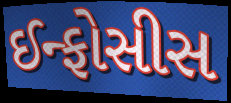
ઈન્ફોસીસ